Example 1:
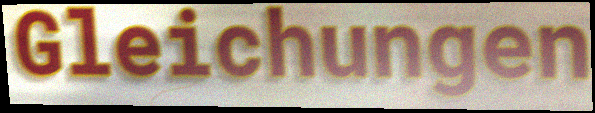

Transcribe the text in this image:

Gleichungen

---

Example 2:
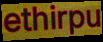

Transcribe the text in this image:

ethirpu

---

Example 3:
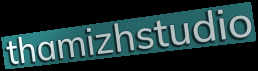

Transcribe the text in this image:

thamizhstudio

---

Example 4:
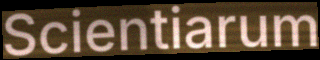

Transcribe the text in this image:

Scientiarum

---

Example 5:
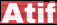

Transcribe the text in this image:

Atif